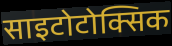
साइटोटोक्सिक